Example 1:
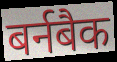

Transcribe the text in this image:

बर्नबैक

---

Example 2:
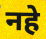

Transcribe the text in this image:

नहे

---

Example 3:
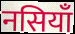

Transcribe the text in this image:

नसियाँ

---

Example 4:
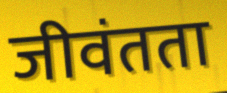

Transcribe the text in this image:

जीवंतता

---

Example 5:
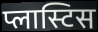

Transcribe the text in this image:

प्लास्टिस